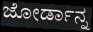
ಜೋರ್ಡಾನ್ನ